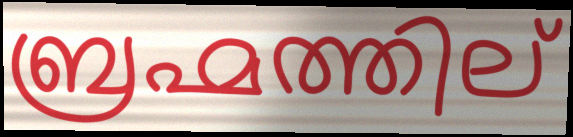
ബ്രഹ്മത്തില്